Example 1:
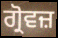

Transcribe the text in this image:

ਗ੍ਰੋਵਜ਼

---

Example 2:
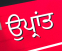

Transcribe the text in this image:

ਉਪ੍ਰਾਂਤ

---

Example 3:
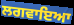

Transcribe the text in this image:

ਲਗਵਾਇਆ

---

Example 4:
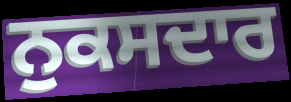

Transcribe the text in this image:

ਨੁਕਸਦਾਰ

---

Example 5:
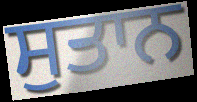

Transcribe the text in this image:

ਸੁਤਾਨ